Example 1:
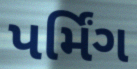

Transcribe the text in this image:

પર્મિંગ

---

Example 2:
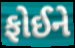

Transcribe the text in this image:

ફોઈને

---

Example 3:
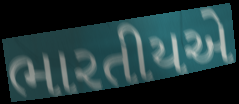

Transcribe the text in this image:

ભારતીયએ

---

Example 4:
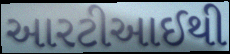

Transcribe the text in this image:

આરટીઆઈથી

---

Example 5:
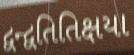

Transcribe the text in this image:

દ્વન્દ્વતિતિક્ષયા